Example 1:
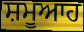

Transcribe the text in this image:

ਸ਼ਮੂਆਹ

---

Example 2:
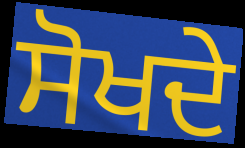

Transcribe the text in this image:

ਸੋਖਦੇ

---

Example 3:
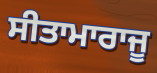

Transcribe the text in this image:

ਸੀਤਾਮਾਰਾਜੂ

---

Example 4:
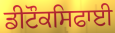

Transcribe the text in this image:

ਡੀਟੌਕਸਿਫਾਈ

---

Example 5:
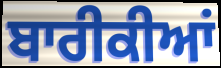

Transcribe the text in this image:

ਬਾਰੀਕੀਆਂ